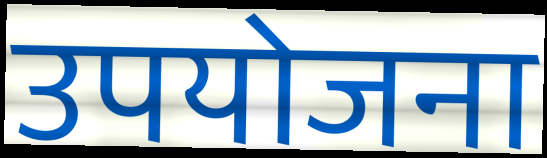
उपयोजना